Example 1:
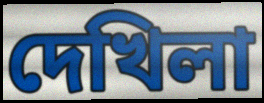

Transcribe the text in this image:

দেখিলা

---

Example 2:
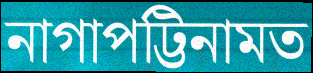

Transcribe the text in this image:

নাগাপট্টিনামত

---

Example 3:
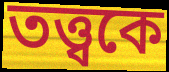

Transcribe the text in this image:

তত্ত্বকে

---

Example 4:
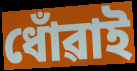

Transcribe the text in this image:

ধোঁৱাই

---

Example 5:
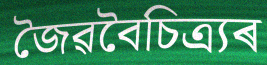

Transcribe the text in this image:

জৈৱবৈচিত্ৰ্যৰ